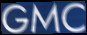
GMC